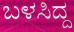
ಬಳಸಿದ್ದ